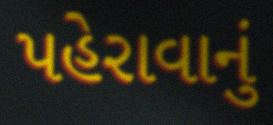
પહેરાવાનું